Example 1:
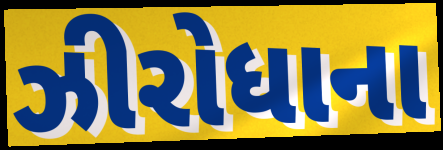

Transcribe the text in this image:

ઝીરોધાના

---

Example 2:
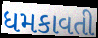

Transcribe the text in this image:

ધમકાવતી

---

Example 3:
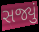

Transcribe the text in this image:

સજ્યું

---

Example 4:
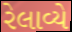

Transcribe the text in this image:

રેલાવ્યે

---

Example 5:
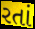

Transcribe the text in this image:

રતાં